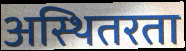
अस्थितरता